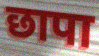
छापा